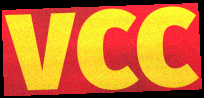
vcc